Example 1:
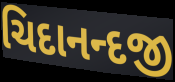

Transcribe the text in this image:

ચિદાનન્દજી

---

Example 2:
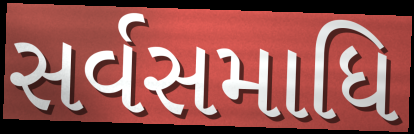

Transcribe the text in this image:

સર્વસમાધિ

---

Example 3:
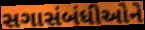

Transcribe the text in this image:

સગાસંબંધીઓને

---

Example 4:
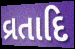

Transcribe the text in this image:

વ્રતાદિ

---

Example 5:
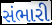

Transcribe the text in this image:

સંભારી